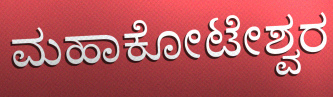
ಮಹಾಕೋಟೇಶ್ವರ